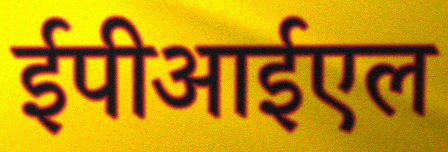
ईपीआईएल